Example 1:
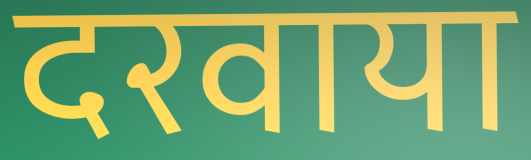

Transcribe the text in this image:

दरवाया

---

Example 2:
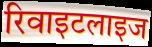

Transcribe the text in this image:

रिवाइटलाइज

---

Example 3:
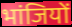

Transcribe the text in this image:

भांजियों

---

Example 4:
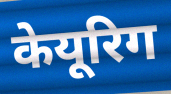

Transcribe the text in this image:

केयूरिग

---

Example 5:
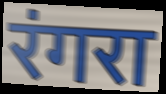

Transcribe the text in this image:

रंगरा